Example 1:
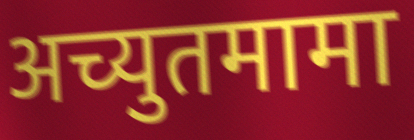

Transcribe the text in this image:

अच्युतमामा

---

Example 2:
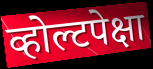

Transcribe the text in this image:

व्होल्टपेक्षा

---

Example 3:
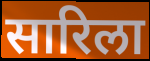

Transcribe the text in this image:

सारिला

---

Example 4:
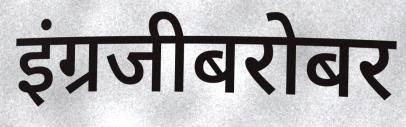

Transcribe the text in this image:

इंग्रजीबरोबर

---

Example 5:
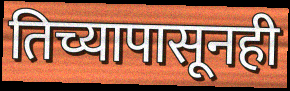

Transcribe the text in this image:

तिच्यापासूनही